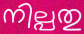
നില്പതു